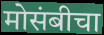
मोसंबीचा